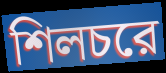
শিলচরে